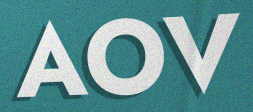
AOV